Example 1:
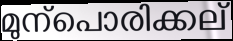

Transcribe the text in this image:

മുന്പൊരിക്കല്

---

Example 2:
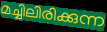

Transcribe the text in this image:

മച്ചിലിരിക്കുന്ന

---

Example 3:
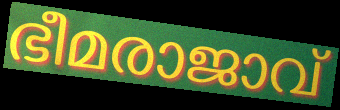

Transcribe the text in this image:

ഭീമരാജാവ്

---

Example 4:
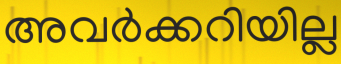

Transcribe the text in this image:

അവർക്കറിയില്ല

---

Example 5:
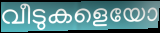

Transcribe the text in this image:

വീടുകളെയോ